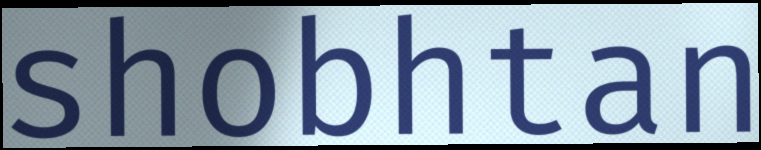
shobhtan